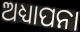
ଅଧ୍ଯାପନା